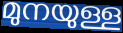
മുനയുള്ള